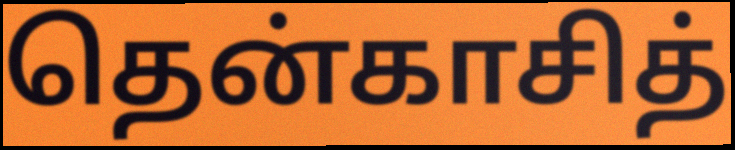
தென்காசித்